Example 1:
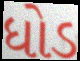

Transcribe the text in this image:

ધોડ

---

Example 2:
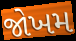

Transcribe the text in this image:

જોખમ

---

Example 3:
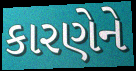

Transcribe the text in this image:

કારણેને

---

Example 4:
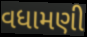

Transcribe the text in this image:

વધામણી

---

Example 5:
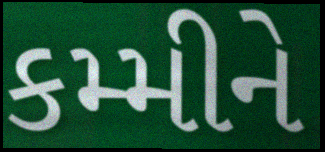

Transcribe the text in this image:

કમ્મીને